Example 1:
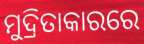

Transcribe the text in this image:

ମୁଦ୍ରିତାକାରରେ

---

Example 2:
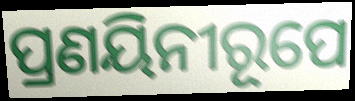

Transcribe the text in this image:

ପ୍ରଣୟିନୀରୂପେ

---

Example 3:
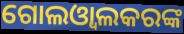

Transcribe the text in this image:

ଗୋଲଓ୍ଵାଲକରଙ୍କ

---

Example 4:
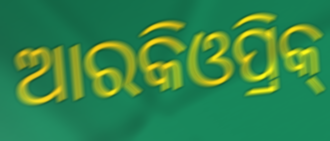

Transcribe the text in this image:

ଆରକିଓପ୍ରିକ୍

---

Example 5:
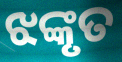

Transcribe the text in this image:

ଝଙ୍କୃତ